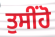
ਤੁਸੀਂਹੋ